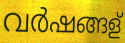
വർഷങ്ങള്